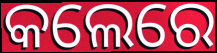
କଲେରେ